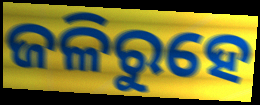
ଜଳିରୁହେ